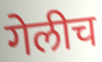
गेलीच